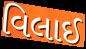
વિલાઈ